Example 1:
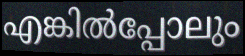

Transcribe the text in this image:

എങ്കിൽപ്പോലും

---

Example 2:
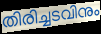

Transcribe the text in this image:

തിരിച്ചടവിനും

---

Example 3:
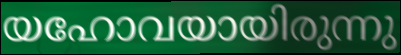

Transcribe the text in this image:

യഹോവയായിരുന്നു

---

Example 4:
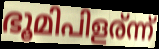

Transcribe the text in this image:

ഭൂമിപിളര്ന്ന്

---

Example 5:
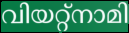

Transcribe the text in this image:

വിയറ്റ്നാമി